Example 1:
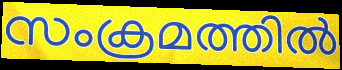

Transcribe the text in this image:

സംക്രമത്തിൽ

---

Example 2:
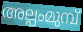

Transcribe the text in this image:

അല്പംമുമ്പ്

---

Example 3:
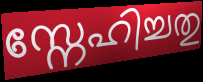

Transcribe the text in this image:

സ്നേഹിച്ചതു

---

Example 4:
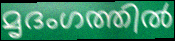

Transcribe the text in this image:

മൃദംഗത്തിൽ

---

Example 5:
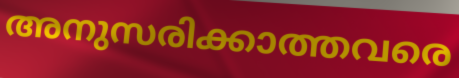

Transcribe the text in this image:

അനുസരിക്കാത്തവരെ